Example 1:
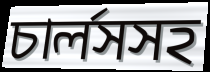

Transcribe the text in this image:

চার্লসসহ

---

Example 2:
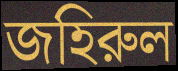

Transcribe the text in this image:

জহিরুল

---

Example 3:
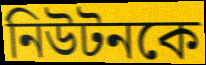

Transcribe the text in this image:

নিউটনকে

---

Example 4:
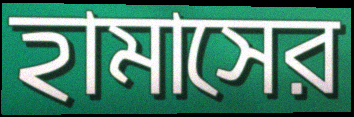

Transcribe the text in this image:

হামাসের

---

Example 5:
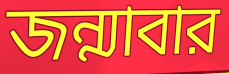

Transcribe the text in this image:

জন্মাবার